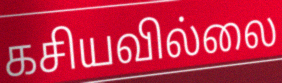
கசியவில்லை